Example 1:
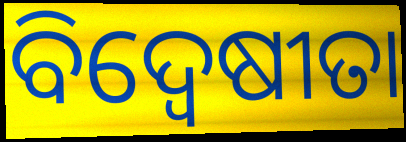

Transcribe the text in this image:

ବିଦ୍ଵେଷୀତା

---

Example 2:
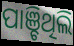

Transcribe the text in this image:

ପାଞ୍ଚିଥିଲି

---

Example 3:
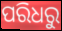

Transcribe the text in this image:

ପରିଧରୁ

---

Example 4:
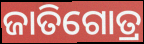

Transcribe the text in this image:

ଜାତିଗୋତ୍ର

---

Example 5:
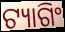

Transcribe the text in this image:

ଟ୍ୟାଗିଂ